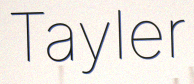
Tayler